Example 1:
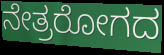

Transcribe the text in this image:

ನೇತ್ರರೋಗದ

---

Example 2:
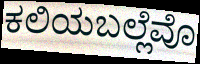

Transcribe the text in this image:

ಕಲಿಯಬಲ್ಲೆವೊ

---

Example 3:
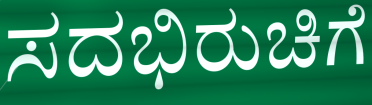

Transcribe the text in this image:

ಸದಭಿರುಚಿಗೆ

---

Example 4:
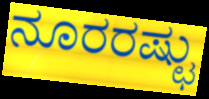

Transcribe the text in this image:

ನೂರರಷ್ಟು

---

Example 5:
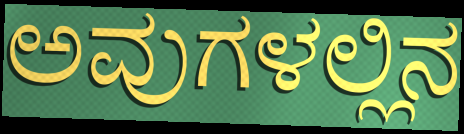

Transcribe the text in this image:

ಅವುಗಳಲ್ಲಿನ